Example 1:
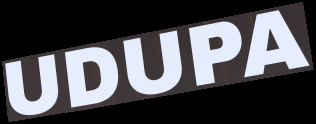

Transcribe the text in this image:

UDUPA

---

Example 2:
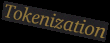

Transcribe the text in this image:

Tokenization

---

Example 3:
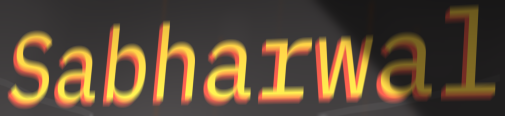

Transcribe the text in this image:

Sabharwal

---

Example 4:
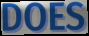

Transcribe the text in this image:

DOES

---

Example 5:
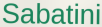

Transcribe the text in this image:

Sabatini